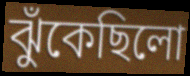
ঝুঁকেছিলো